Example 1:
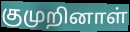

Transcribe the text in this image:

குமுறினாள்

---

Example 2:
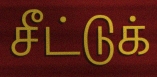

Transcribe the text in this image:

சீட்டுக்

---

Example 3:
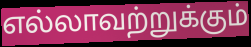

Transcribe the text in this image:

எல்லாவற்றுக்கும்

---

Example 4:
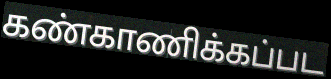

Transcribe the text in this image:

கண்காணிக்கப்பட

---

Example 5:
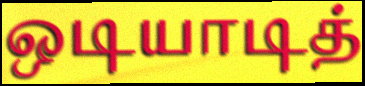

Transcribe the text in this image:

ஒடியாடித்